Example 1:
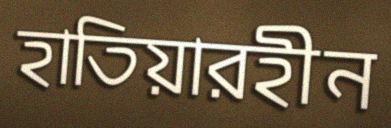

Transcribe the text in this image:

হাতিয়ারহীন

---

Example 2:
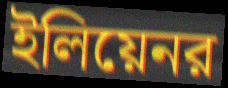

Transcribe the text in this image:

ইলিয়েনর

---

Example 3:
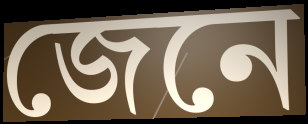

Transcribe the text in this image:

জেনে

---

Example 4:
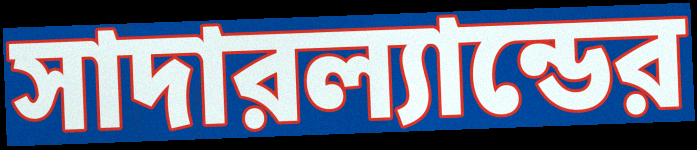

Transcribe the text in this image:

সাদারল্যান্ডের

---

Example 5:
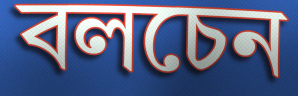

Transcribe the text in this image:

বলচেন